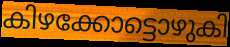
കിഴക്കോട്ടൊഴുകി